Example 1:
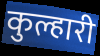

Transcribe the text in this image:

कुल्हारी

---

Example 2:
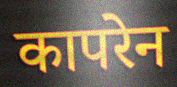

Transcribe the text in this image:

कापरेन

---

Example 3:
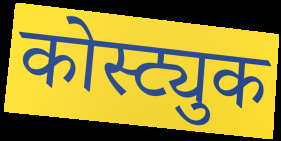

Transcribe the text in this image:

कोस्ट्युक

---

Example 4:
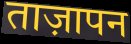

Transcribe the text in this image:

ताज़ापन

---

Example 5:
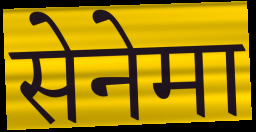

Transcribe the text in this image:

सेनेमा